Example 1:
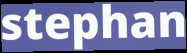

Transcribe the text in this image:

stephan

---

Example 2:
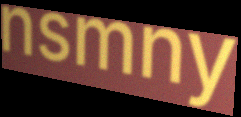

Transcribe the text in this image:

nsmny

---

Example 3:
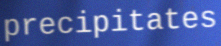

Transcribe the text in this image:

precipitates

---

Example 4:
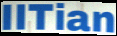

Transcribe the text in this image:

IITian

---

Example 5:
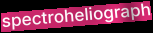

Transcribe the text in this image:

spectroheliograph